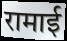
रामाई